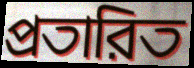
প্রতারিত